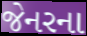
જેનરના